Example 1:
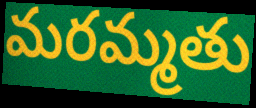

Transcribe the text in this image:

మరమ్మతు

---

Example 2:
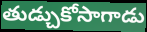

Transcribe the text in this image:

తుడ్చుకోసాగాడు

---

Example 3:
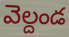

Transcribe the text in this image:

వెల్దండ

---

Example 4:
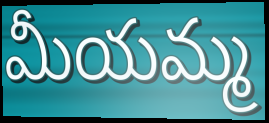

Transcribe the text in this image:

మీయమ్మ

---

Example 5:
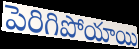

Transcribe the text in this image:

పెరిగిపోయాయి